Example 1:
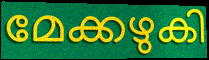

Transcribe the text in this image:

മേക്കഴുകി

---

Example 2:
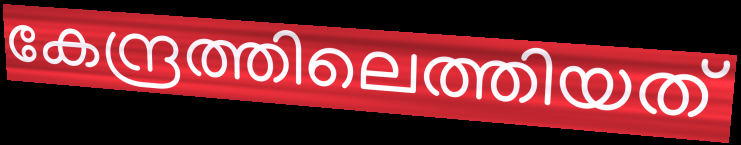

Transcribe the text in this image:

കേന്ദ്രത്തിലെത്തിയത്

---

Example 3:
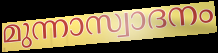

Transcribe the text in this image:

മുന്നാസ്വാദനം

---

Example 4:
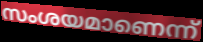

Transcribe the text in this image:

സംശയമാണെന്ന്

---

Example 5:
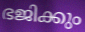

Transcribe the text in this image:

ഭജിക്കും